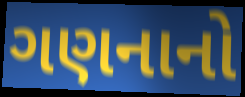
ગણનાનો